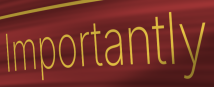
Importantly